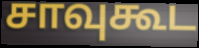
சாவுகூட